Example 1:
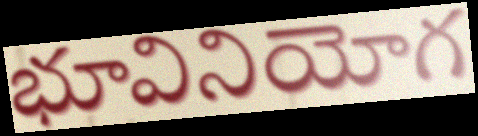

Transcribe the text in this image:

భూవినియోగ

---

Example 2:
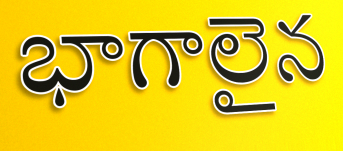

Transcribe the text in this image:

భాగాలైన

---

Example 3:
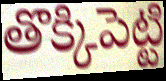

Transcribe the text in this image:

తొక్కిపెట్టి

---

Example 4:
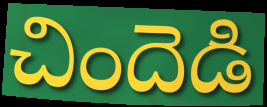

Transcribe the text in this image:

చిందెడి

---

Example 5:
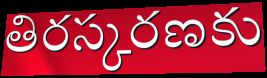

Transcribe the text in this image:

తిరస్కరణకు